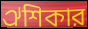
ঐশিকার